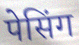
पेसिंग